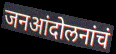
जनआंदोलनांचं